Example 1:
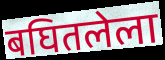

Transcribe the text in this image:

बघितलेला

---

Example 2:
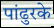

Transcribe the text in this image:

पांढुरके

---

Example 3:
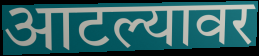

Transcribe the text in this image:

आटल्यावर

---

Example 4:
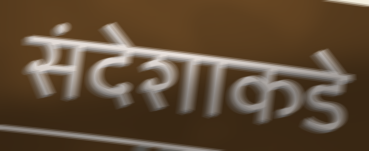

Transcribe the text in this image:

संदेशाकडे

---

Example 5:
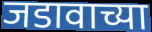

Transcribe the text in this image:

जडावाच्या